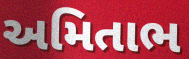
અમિતાભ